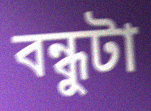
বন্ধুটা